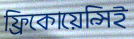
ফ্রিকোয়েন্সিই